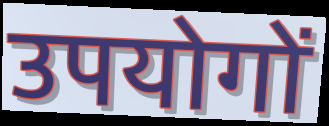
उपयोगों